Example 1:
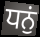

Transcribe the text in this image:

ਧਨੁਂ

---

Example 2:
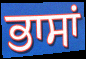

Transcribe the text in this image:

ਭਾਸਾਂ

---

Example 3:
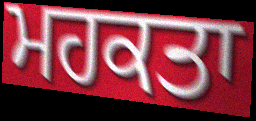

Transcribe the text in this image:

ਮਹਕਤਾ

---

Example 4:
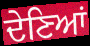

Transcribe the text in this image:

ਦੇਣਿਆਂ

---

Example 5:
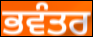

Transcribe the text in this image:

ਭਵੰਤਰ